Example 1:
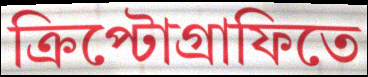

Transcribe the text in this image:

ক্রিপ্টোগ্রাফিতে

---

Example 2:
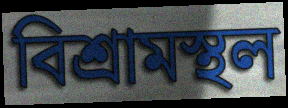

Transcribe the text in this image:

বিশ্রামস্থল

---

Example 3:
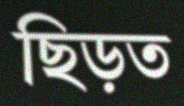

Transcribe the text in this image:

ছিড়ত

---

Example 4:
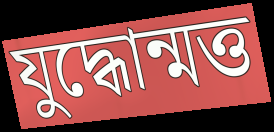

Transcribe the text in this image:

যুদ্ধোন্মত্ত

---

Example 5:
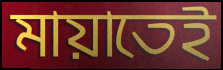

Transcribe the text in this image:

মায়াতেই